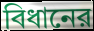
বিধানের